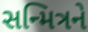
સન્મિત્રને